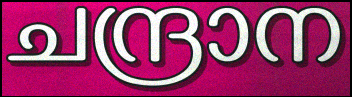
ചന്ദ്രാന